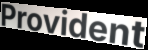
Provident